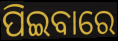
ପିଇବାରେ